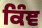
ਕਿੰਞ